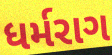
ધર્મરાગ